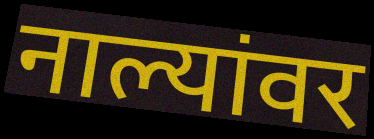
नाल्यांवर